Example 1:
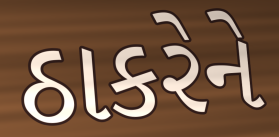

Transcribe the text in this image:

ઠાકરેને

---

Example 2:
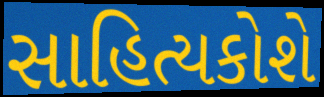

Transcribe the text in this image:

સાહિત્યકોશે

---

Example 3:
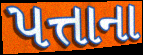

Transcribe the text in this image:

પત્તાના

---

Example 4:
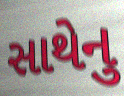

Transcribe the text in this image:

સાથેનુ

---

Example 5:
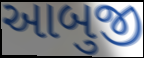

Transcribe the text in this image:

આબુજી